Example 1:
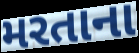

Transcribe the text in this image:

મરતાના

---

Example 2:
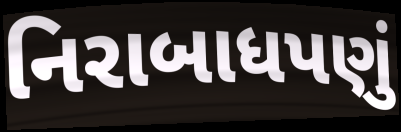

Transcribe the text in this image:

નિરાબાધપણું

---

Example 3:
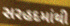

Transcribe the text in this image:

સરહદમાંથી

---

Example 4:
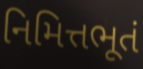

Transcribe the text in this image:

નિમિત્તભૂતં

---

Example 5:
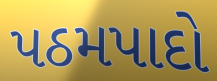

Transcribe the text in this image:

પઠમપાદો